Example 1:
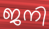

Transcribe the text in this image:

ജനി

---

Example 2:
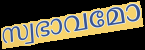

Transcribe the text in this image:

സ്വഭാവമോ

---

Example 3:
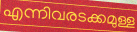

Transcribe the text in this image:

എന്നിവരടക്കമുള്ള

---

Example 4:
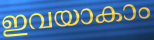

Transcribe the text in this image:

ഇവയാകാം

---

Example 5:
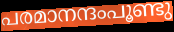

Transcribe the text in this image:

പരമാനന്ദംപൂണ്ടു